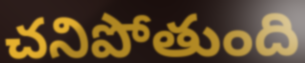
చనిపోతుంది